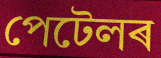
পেটেলৰ